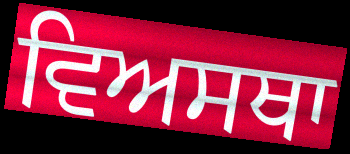
ਵਿਅਸਥਾ